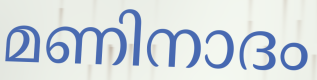
മണിനാദം